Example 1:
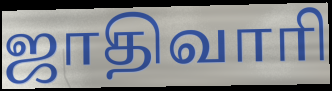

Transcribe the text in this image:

ஜாதிவாரி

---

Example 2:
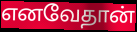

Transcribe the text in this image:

எனவேதான்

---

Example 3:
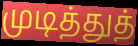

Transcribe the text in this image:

முடித்துத்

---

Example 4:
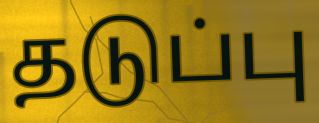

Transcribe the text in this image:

தடுப்பு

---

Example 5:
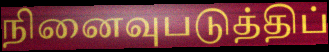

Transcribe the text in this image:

நினைவுபடுத்திப்